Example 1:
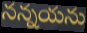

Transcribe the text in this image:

నన్నయను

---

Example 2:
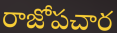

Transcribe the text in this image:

రాజోపచార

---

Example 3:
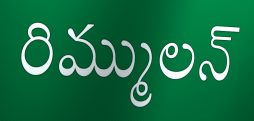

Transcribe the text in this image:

రిమ్ములన్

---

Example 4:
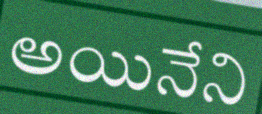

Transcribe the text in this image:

అయినేని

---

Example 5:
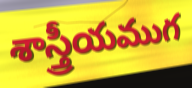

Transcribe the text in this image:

శాస్త్రీయముగ